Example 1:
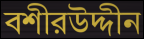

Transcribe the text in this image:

বশীরউদ্দীন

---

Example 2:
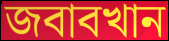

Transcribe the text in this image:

জবাবখান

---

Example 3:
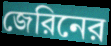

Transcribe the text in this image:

জেরিনের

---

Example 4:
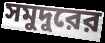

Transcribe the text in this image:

সমুদুরের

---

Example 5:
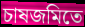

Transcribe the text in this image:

চাষজমিতে